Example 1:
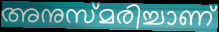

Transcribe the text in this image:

അനുസ്മരിച്ചാണ്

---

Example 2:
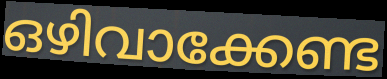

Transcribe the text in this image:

ഒഴിവാക്കേണ്ട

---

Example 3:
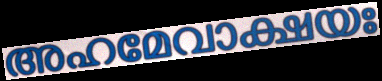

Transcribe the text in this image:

അഹമേവാക്ഷയഃ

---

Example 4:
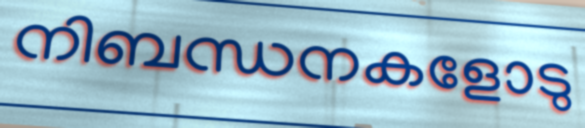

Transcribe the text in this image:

നിബന്ധനകളോടു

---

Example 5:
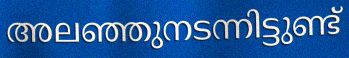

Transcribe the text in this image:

അലഞ്ഞുനടന്നിട്ടുണ്ട്